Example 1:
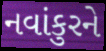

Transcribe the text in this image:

નવાંકુરને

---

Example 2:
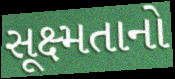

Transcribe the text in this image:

સૂક્ષ્મતાનો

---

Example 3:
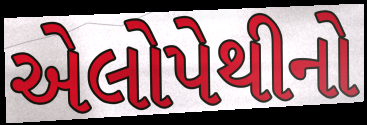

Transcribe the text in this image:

એલોપેથીનો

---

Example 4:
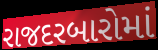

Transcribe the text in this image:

રાજદરબારોમાં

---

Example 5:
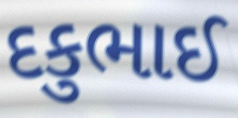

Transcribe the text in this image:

દકુભાઈ